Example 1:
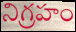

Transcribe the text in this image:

నిగ్రహం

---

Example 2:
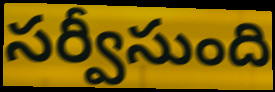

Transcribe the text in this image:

సర్వీసుంది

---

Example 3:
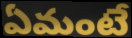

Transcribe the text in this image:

ఏమంటే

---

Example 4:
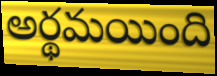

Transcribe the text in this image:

అర్థమయింది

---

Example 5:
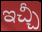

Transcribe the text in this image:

ఇచ్చీ